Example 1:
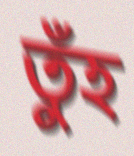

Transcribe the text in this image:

তুঁহ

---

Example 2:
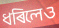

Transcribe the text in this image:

ধৰিলেও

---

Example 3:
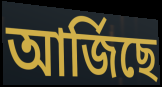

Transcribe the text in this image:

আৰ্জিছে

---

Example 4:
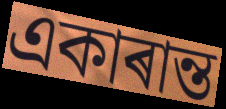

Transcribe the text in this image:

একাৰান্ত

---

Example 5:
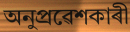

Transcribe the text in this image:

অনুপ্ৰৱেশকাৰী